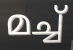
മച്ച്